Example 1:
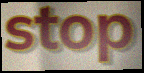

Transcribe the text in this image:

stop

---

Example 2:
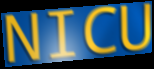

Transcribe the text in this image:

NICU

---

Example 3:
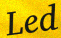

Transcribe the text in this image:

Led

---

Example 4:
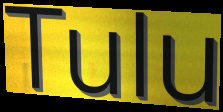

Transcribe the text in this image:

Tulu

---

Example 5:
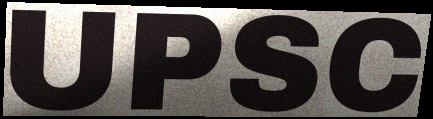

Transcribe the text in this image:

UPSC